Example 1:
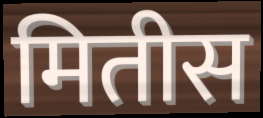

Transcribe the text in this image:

मितीस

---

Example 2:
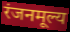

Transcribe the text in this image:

रंजनमूल्य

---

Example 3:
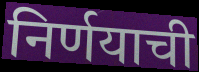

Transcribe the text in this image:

निर्णयाची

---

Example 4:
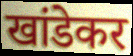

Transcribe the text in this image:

खांडेकर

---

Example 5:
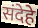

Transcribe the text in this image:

संदेहे